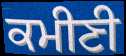
ਕਮੀਣੀ